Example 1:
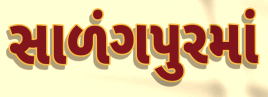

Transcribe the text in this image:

સાળંગપુરમાં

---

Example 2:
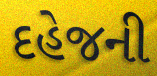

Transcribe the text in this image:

દહેજની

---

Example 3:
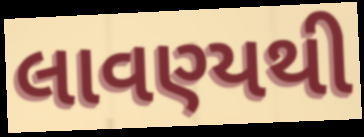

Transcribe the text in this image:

લાવણ્યથી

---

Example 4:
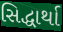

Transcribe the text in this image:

સિદ્ધાર્થા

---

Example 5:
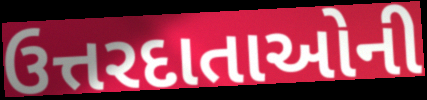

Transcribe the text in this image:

ઉત્તરદાતાઓની